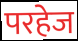
परहेज